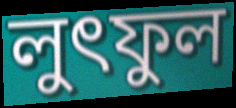
লুৎফুল